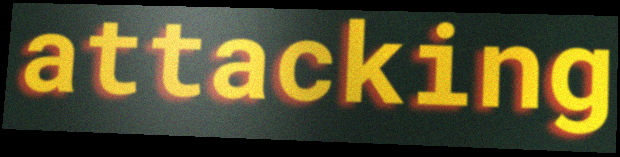
attacking